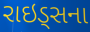
રાઇડ્સના